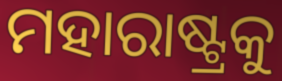
ମହାରାଷ୍ଟ୍ରକୁ